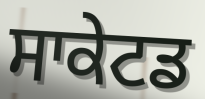
ਸਾਕੇਟਡ